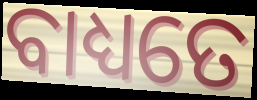
ବାଧ୍ଯତେ